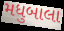
મધુબાલા